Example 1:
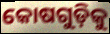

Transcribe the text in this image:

କୋଷଗୁଡ଼ିକୁ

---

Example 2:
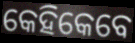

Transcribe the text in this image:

କେହିକେବେ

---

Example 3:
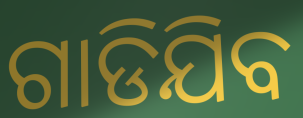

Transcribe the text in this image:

ଗାଡିଯିବ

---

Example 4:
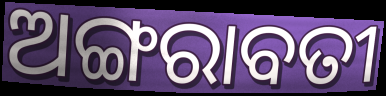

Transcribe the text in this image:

ଅଙ୍ଗରାବତୀ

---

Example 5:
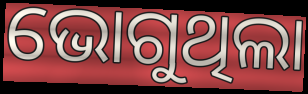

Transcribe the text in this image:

ଭୋଗୁଥିଲା